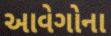
આવેગોના